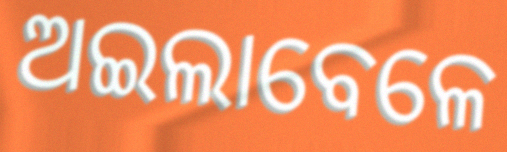
ଅଇଲାବେଳେ